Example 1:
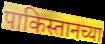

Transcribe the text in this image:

पाकिस्तानच्या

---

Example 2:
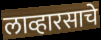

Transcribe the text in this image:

लाव्हारसाचे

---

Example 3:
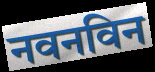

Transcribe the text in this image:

नवनविन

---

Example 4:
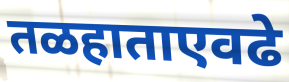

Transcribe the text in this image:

तळहाताएवढे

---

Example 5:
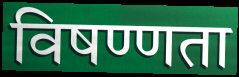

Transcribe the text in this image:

विषण्णता